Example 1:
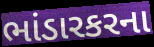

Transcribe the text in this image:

ભાંડારકરના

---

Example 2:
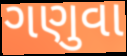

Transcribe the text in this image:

ગણુવા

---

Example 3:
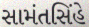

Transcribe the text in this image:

સામંતસિંહે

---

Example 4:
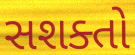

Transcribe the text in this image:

સશક્તો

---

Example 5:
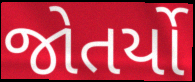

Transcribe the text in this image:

જોતર્યો